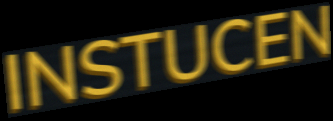
INSTUCEN